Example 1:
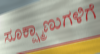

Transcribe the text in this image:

ಸೂಕ್ಷ್ಮಾಣುಗಳಿಗೆ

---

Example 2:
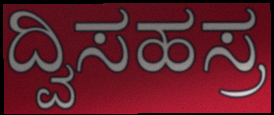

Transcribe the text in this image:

ದ್ವಿಸಹಸ್ರ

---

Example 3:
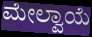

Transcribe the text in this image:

ಮೇಲ್ವಾಯೆ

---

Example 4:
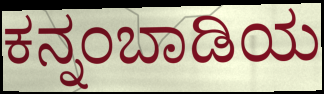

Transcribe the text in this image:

ಕನ್ನಂಬಾಡಿಯ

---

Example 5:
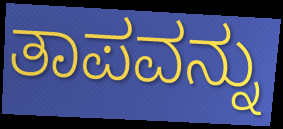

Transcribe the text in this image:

ತಾಪವನ್ನು